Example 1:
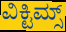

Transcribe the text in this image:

ವಿಕ್ಟಿಮ್ಸ್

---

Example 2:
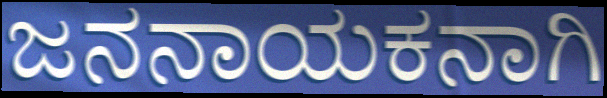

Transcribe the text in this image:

ಜನನಾಯಕನಾಗಿ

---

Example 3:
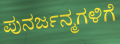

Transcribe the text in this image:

ಪುನರ್ಜನ್ಮಗಳಿಗೆ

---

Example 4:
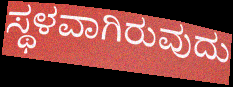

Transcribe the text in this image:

ಸ್ಥಳವಾಗಿರುವುದು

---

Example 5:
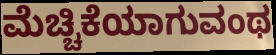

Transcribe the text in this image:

ಮೆಚ್ಚಿಕೆಯಾಗುವಂಥ